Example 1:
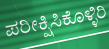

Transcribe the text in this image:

ಪರೀಕ್ಷಿಸಿಕೊಳ್ಳಿರಿ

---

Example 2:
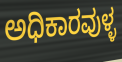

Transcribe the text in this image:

ಅಧಿಕಾರವುಳ್ಳ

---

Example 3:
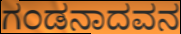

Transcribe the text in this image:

ಗಂಡನಾದವನ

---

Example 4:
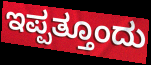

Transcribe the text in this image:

ಇಪ್ಪತ್ತೂಂದು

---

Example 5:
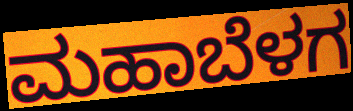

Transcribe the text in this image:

ಮಹಾಬೆಳಗ